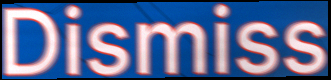
Dismiss